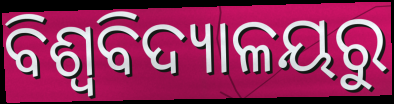
ବିଶ୍ୱବିଦ୍ୟାଳୟରୁ